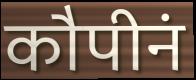
कौपीनं